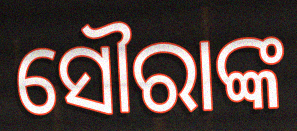
ସୌରାଙ୍କ